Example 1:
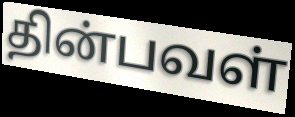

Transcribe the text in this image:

தின்பவள்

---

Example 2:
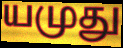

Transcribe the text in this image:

யமுது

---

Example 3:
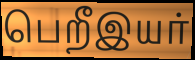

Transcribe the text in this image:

பெறீஇயர்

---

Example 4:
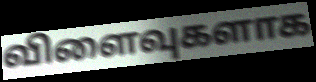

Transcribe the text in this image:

விளைவுகளாக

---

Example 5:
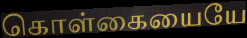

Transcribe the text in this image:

கொள்கையையே